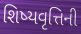
શિષ્યવૃત્તિની